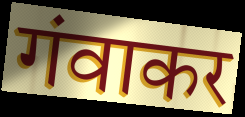
गंवाकर